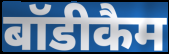
बॉडीकैम